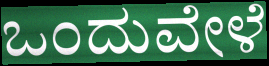
ಒಂದುವೇಳೆ